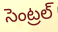
సెంట్రల్